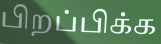
பிறப்பிக்க